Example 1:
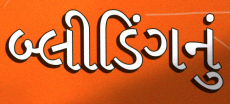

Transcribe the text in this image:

બ્લીડિંગનું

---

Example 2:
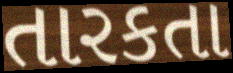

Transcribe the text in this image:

તારકતા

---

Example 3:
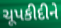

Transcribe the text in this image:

ચૂપકીદીને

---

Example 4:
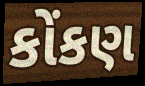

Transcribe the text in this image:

કોંકણ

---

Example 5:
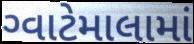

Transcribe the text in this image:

ગ્વાટેમાલામાં